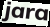
jara